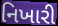
નિખારી